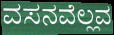
ವಸನವೆಲ್ಲವ